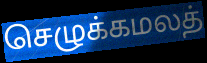
செழுக்கமலத்